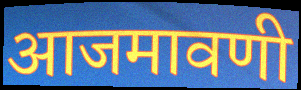
आजमावणी